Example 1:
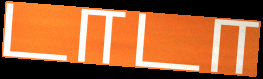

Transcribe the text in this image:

டாடா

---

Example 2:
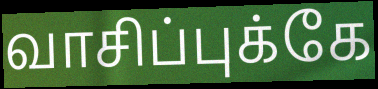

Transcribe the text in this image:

வாசிப்புக்கே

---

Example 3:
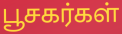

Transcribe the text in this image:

பூசகர்கள்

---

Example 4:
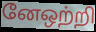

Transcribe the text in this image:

னேஒற்றி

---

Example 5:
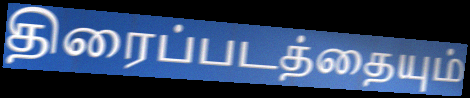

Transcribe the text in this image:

திரைப்படத்தையும்